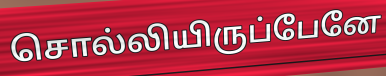
சொல்லியிருப்பேனே